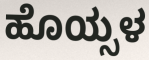
ಹೊಯ್ಸಳ